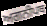
ਅਗਨੀਪਥ